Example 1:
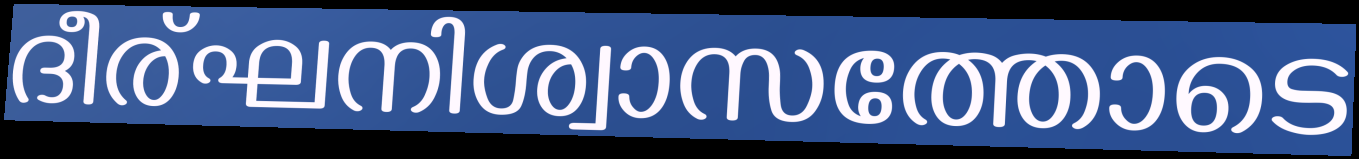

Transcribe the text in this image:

ദീര്ഘനിശ്വാസത്തോടെ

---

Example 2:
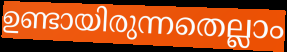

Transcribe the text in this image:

ഉണ്ടായിരുന്നതെല്ലാം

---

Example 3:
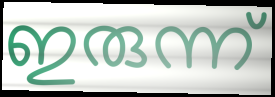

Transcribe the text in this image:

ഇരുന്ന്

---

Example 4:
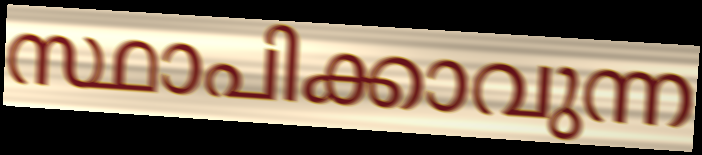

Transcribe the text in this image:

സ്ഥാപിക്കാവുന്ന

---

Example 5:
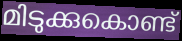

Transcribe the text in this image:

മിടുക്കുകൊണ്ട്